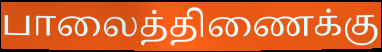
பாலைத்திணைக்கு